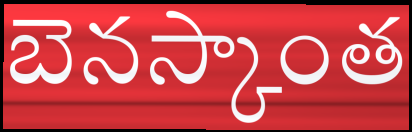
బెనస్కాంత